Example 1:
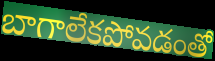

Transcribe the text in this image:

బాగాలేకపోవడంతో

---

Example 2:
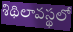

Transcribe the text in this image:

శిథిలావస్థలో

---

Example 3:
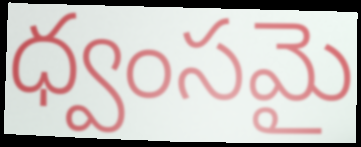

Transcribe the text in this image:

ధ్వంసమై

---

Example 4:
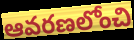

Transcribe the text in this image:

ఆవరణలోంచి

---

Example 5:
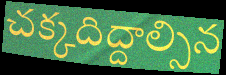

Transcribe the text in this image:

చక్కదిద్దాల్సిన